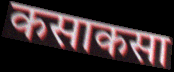
कसाकसा